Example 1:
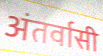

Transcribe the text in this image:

अंतर्वासी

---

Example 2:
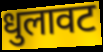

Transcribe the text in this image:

धुलावट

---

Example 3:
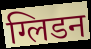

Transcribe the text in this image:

ग्लिडन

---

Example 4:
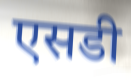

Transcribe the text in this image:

एसडी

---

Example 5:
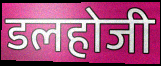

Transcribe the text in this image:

डलहोजी